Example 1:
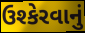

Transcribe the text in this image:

ઉશ્કેરવાનું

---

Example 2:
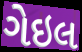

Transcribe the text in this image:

ગેઇલ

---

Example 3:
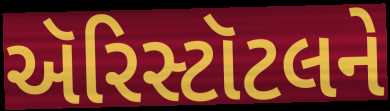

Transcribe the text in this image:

ઍરિસ્ટૉટલને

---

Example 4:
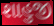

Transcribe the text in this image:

શાહુજી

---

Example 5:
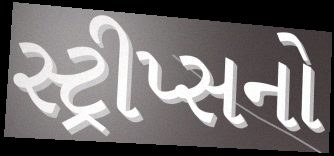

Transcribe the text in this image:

સ્ટ્રીપ્સનો